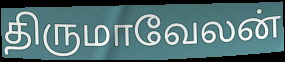
திருமாவேலன்